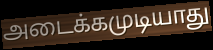
அடைக்கமுடியாது